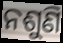
ନଶୁଣି